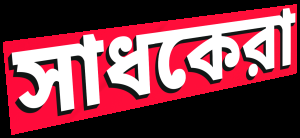
সাধকেরা